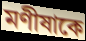
মণীষাকে